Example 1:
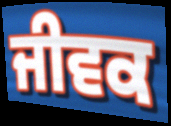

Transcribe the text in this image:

ਜੀਵਕ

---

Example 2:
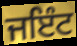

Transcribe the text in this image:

ਜਇੰਟ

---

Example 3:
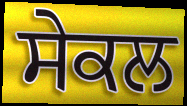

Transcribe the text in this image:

ਸੇਕਲ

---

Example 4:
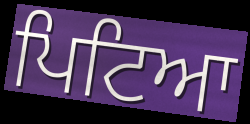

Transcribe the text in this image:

ਪਿਟਿਆ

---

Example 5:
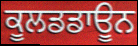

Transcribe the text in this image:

ਕੂਲਡਡਾਊਨ